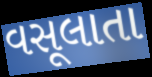
વસૂલાતા